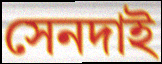
সেনদাই